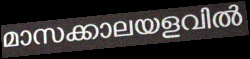
മാസക്കാലയളവിൽ